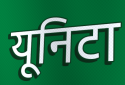
यूनिटा